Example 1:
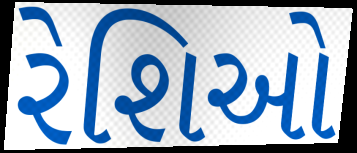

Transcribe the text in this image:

રેશિઓ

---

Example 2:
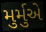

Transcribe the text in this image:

મુર્મુએ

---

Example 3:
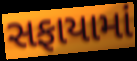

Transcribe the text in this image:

સફાયામાં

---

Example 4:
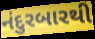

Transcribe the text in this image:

નંદુરબારથી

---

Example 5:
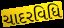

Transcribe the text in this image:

ચાદરવિધિ